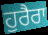
ਹੁਰੈਰਾ